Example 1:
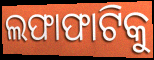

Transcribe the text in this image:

ଲଫାଫାଟିକୁ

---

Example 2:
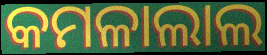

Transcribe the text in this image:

କମଳାଲାଲ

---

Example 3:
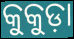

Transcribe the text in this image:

କୁକୁଡ଼ା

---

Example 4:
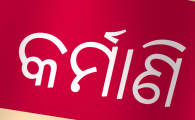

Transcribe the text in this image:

କର୍ମାଣି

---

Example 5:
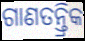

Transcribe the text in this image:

ଗାଣତନ୍ତ୍ରିକ